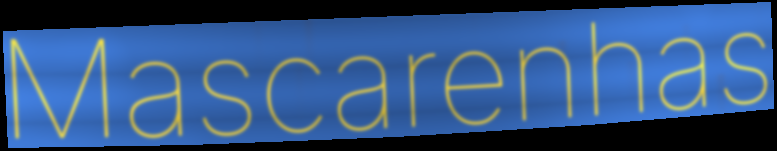
Mascarenhas